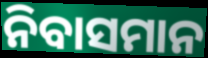
ନିବାସମାନ